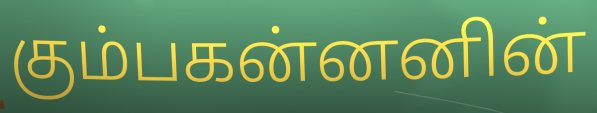
கும்பகன்னனின்